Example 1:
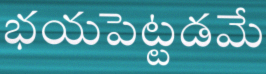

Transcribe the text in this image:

భయపెట్టడమే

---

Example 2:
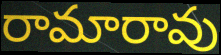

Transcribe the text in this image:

రామారావు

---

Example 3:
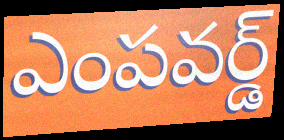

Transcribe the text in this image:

ఎంపవర్డ్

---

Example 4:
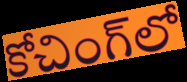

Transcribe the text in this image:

కోచింగ్‌లో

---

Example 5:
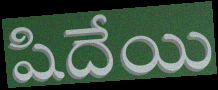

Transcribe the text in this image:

షిదేయి